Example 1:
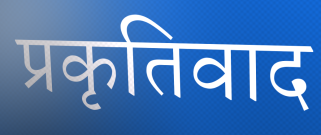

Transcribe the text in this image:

प्रकृतिवाद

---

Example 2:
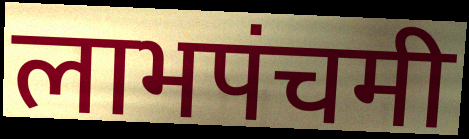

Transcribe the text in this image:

लाभपंचमी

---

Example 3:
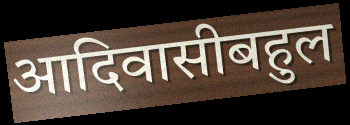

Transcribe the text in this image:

आदिवासीबहुल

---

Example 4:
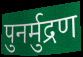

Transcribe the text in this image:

पुनर्मुद्रण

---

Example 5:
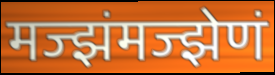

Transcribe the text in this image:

मज्झंमज्झेणं